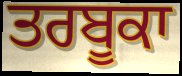
ਤਰਬੂਕਾ